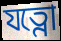
যত্নো